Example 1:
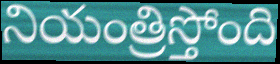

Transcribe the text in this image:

నియంత్రిస్తోంది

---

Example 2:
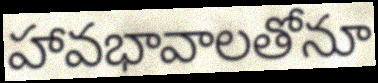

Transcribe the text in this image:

హావభావాలతోనూ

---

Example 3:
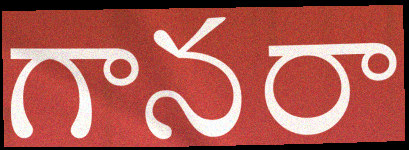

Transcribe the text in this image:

గానరా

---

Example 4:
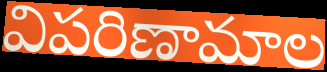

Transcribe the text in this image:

విపరిణామాల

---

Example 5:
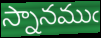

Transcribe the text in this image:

స్నానముఁ